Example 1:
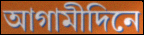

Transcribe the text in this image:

আগামীদিনে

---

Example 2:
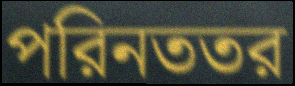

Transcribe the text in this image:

পরিনততর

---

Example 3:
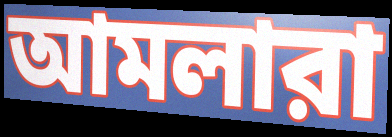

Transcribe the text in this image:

আমলারা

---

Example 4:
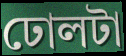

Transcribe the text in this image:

ঢোলটা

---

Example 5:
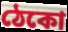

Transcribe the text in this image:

ঠেকো